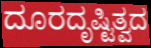
ದೂರದೃಷ್ಟಿತ್ವದ